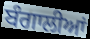
ਬੰਗਾਲੀਆਂ